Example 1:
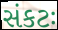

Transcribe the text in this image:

સંકટઃ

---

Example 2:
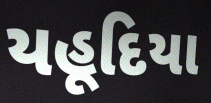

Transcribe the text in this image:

યહૂદિયા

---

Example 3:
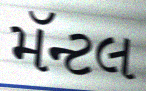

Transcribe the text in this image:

મૅન્ટલ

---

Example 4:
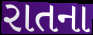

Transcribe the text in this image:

રાતના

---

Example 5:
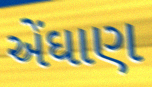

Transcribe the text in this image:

એંઘાણ